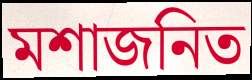
মশাজনিত